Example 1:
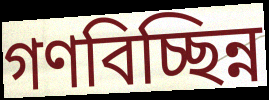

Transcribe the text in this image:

গণবিচ্ছিন্ন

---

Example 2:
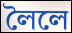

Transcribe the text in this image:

লৈলে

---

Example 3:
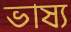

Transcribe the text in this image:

ভাষ্য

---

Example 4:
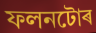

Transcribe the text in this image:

ফলনটোৰ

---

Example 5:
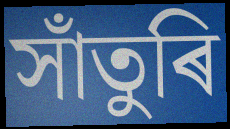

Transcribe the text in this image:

সাঁতুৰি